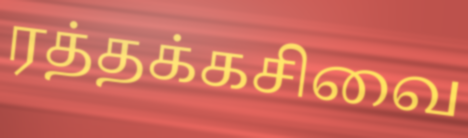
ரத்தக்கசிவை